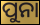
ପୁନା